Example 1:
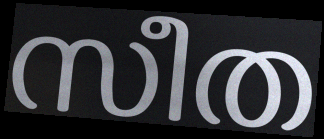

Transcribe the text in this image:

സീത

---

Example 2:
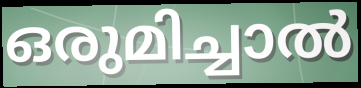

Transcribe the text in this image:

ഒരുമിച്ചാൽ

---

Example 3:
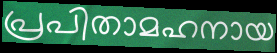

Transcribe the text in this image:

പ്രപിതാമഹനായ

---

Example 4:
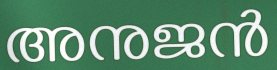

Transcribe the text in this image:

അനുജൻ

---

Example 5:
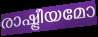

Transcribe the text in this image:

രാഷ്ട്രീയമോ